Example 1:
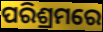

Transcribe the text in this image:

ପରିଶ୍ରମରେ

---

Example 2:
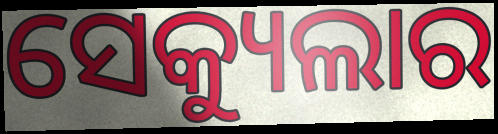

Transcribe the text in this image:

ସେକ୍ୟୁଲାର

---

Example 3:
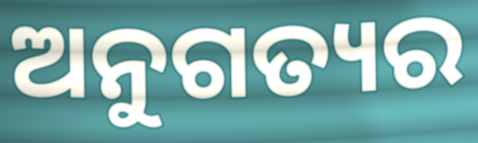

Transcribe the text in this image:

ଅନୁଗତ୍ୟର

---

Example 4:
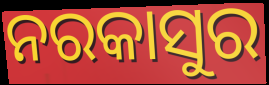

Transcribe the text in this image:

ନରକାସୁର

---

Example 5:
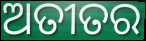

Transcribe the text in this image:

ଅତୀତର